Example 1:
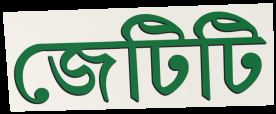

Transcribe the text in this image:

জেটিটি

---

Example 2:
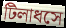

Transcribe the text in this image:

টিলাধসে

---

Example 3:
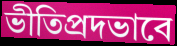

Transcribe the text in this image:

ভীতিপ্রদভাবে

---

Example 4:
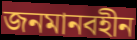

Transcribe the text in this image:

জনমানবহীন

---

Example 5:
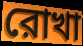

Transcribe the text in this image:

রোখা